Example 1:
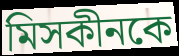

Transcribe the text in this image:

মিসকীনকে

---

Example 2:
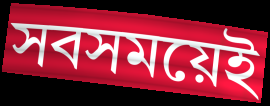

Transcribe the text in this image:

সবসময়েই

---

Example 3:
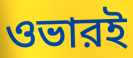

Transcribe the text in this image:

ওভারই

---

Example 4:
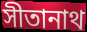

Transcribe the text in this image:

সীতানাথ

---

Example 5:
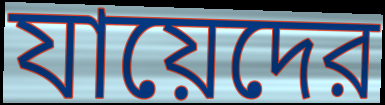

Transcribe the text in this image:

যায়েদের